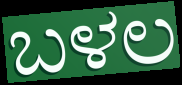
ಬಳಲ